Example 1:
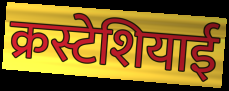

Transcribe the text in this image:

क्रस्टेशियाई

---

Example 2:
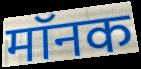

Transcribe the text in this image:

मॉनक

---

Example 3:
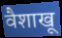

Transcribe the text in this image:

वैशाखू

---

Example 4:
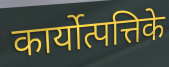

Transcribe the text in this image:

कार्योत्पत्तिके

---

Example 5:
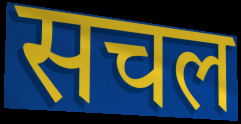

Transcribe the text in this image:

सचल